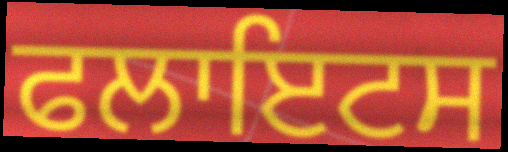
ਫਲਾਇਟਸ